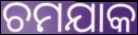
ଚମଯାକ